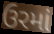
ઉરમાં